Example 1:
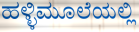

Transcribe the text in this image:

ಹಳ್ಳಿಮೂಲೆಯಲ್ಲಿ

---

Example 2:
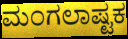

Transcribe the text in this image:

ಮಂಗಲಾಷ್ಟಕ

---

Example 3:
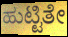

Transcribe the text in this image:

ಹುಟ್ಟಿತೇ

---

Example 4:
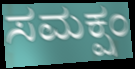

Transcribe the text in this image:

ಸಮಕ್ಷಂ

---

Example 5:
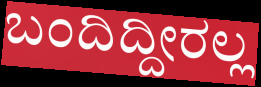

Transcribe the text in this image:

ಬಂದಿದ್ದೀರಲ್ಲ